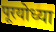
पूरयोध्या